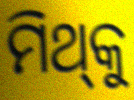
ମିଥ୍‍କୁ